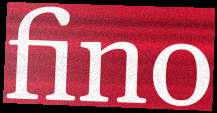
fino